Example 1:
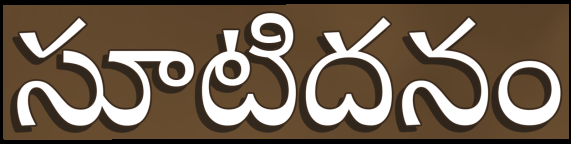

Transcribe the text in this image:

సూటిదనం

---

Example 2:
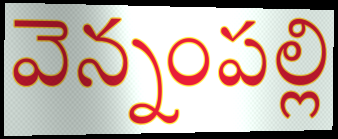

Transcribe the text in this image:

వెన్నంపల్లి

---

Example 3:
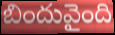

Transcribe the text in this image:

బిందువైంది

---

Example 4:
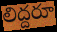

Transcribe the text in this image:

లిద్దరూ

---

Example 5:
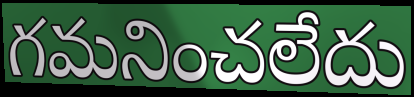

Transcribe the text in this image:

గమనించలేదు